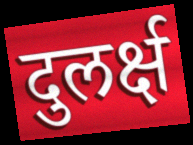
दुलर्क्ष